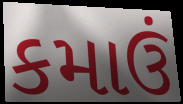
કમાઉં